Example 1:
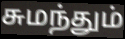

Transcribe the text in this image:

சுமந்தும்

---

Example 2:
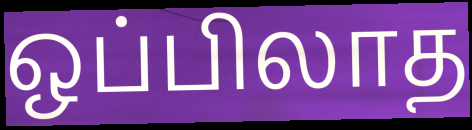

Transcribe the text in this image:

ஒப்பிலாத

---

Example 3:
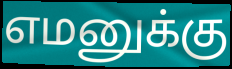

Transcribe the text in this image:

எமனுக்கு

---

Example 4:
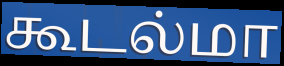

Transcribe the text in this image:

கூடல்மா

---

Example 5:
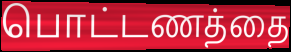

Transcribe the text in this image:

பொட்டணத்தை